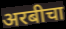
अरबीचा